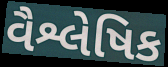
વૈશ્લેષિક